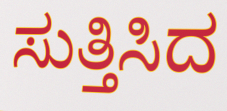
ಸುತ್ತಿಸಿದ